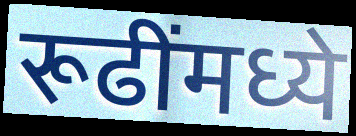
रूढींमध्ये